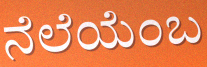
ನೆಲೆಯೆಂಬ